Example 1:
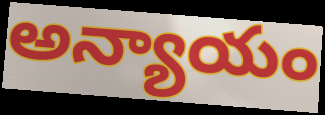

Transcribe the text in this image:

అన్యాయం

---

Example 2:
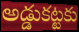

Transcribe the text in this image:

అడ్డుకట్టకు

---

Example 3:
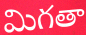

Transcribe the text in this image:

మిగతా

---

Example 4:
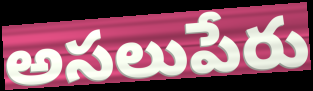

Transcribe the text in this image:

అసలుపేరు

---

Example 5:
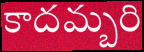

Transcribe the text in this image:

కాదమ్బరి